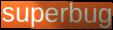
superbug